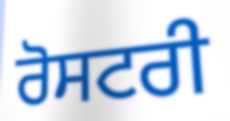
ਰੋਸਟਰੀ